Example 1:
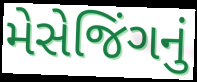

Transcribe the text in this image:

મેસેજિંગનું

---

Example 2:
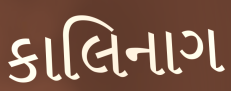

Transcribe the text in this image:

કાલિનાગ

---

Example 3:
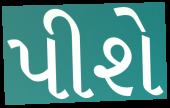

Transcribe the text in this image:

પીશે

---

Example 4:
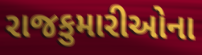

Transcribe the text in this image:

રાજકુમારીઓના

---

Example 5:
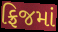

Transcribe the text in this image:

ફ્રિજમાં